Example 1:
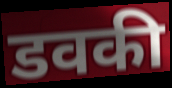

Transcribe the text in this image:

डवकी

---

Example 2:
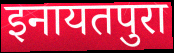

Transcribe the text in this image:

इनायतपुरा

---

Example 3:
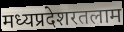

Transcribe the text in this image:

मध्यप्रदेशरतलाम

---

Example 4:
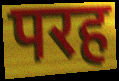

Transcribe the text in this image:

परह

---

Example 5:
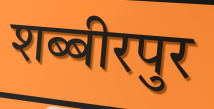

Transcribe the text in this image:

शब्‍बीरपुर